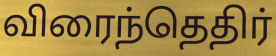
விரைந்தெதிர்